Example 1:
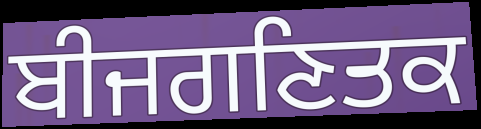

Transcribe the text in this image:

ਬੀਜਗਣਿਤਕ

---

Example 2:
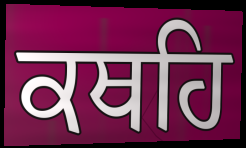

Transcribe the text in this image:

ਕਥਹਿ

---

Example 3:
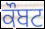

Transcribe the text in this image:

ਕੌਬਟ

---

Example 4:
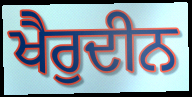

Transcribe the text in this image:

ਖੈਰੁਦੀਨ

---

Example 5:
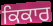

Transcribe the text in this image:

ਕਿਕਾਰ